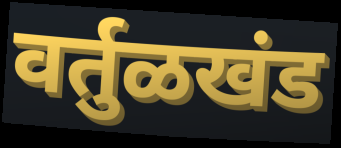
वर्तुळखंड